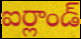
ఐర్లాండ్